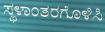
ಸ್ಥಳಾಂತರಗೊಳಿಸಿ